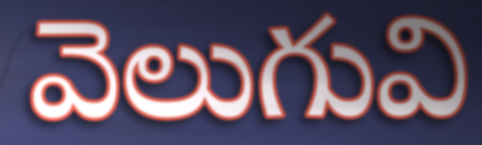
వెలుగువి